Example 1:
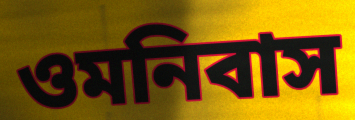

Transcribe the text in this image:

ওমনিবাস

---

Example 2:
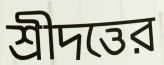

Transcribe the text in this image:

শ্রীদত্তের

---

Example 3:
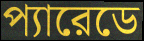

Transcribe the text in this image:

প্যারেডে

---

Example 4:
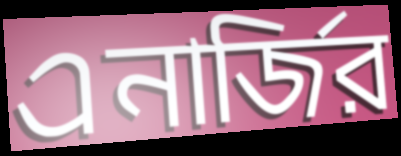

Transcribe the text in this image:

এনার্জির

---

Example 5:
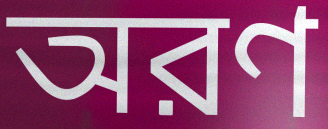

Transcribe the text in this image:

অরণ